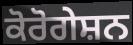
ਕੋਰੋਗੇਸ਼ਨ